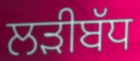
ਲੜੀਬੱਧ